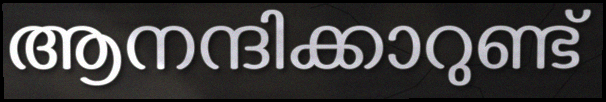
ആനന്ദിക്കാറുണ്ട്